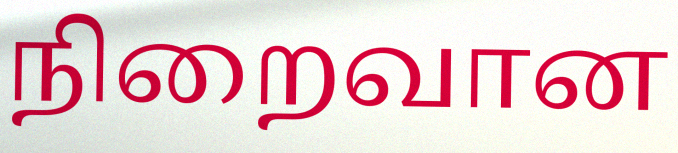
நிறைவான